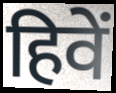
हिवें